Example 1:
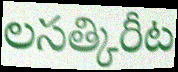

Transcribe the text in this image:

లసత్కిరీట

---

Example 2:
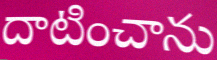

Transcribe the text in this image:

దాటించాను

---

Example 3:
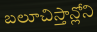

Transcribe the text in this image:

బలూచిస్తాన్లోని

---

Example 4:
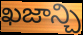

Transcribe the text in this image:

ఖజాన్చి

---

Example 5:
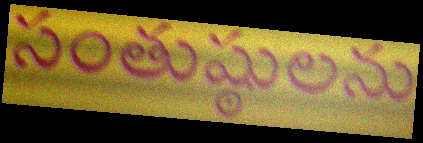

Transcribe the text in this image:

సంతుష్ఠులను